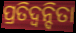
ପ୍ରତିଦ୍ଵନ୍ଦିତା